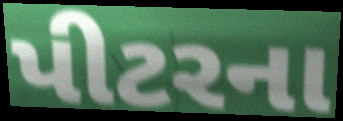
પીટરના